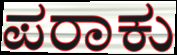
ಪರಾಕು